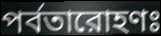
পর্বতারোহণঃ